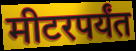
मीटरपर्यंत